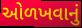
ઓળખવાનું